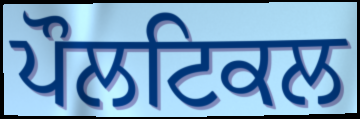
ਪੌਲਟਿਕਲ